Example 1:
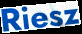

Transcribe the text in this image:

Riesz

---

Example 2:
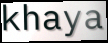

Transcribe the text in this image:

khaya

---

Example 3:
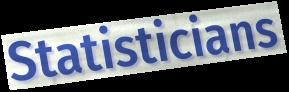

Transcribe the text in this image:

Statisticians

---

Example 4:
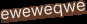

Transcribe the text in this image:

eweweqwe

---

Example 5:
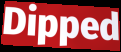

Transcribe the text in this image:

Dipped